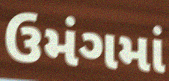
ઉમંગમાં